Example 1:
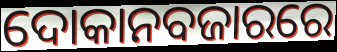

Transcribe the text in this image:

ଦୋକାନବଜାରରେ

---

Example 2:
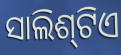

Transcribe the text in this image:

ସାଲିଶ୍‌ଟିଏ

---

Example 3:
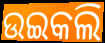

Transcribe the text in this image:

ଉଇକଲି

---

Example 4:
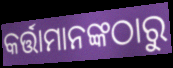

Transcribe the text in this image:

କର୍ତ୍ତାମାନଙ୍କଠାରୁ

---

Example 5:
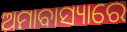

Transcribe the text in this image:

ଅମାବାସ୍ୟାରେ